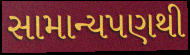
સામાન્યપણથી